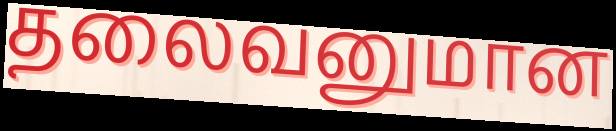
தலைவனுமான